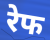
रेफ